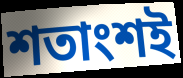
শতাংশই